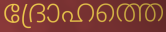
ദ്രോഹത്തെ